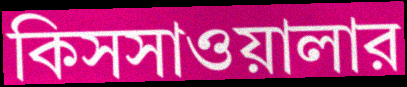
কিসসাওয়ালার